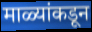
माळ्यांकडून